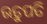
ଋତୁପତି